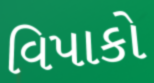
વિપાકો